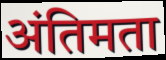
अंतिमता